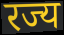
रज्य